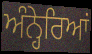
ਅੰਨ੍ਹੇਰਿਆਂ